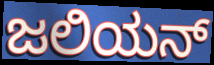
ಜಲಿಯನ್